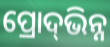
ପ୍ରୋଦ୍‌ଭିନ୍ନ